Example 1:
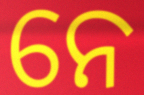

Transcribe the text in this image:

ନେ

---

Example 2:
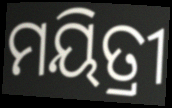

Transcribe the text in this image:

ମୟିତ୍ରୀ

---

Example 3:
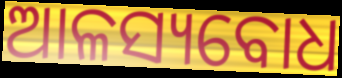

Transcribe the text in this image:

ଆଳସ୍ୟବୋଧ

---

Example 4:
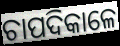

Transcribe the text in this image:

ଚାପଦିକାଳେ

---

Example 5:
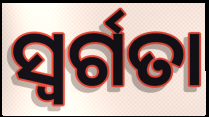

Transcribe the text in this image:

ସ୍ୱର୍ଗତା